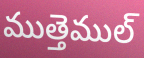
ముత్తెముల్